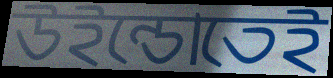
উইন্ডোতেই